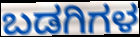
ಬಡಗಿಗಳ